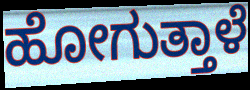
ಹೋಗುತ್ತಾಳೆ